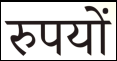
रुपयों